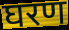
घरण